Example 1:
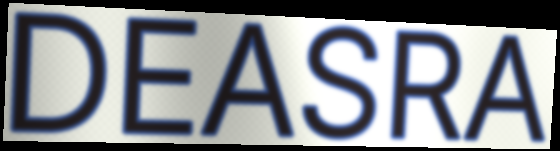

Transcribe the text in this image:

DEASRA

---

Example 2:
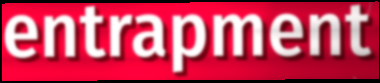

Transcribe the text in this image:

entrapment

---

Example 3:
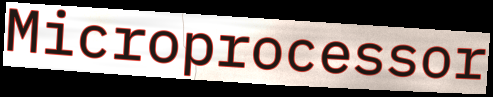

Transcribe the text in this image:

Microprocessor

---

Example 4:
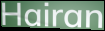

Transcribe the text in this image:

Hairan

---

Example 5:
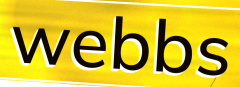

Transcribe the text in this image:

webbs